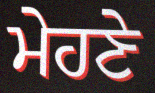
ਮੇਹਣੇ